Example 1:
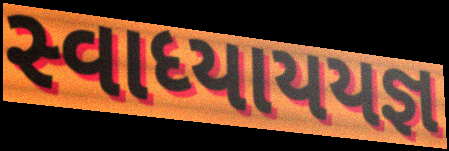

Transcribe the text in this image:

સ્વાધ્યાયયજ્ઞ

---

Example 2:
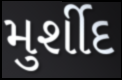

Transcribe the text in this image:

મુર્શીદ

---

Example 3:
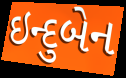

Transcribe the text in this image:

ઇન્દુબેન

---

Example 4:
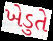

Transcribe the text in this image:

ખેડુતે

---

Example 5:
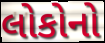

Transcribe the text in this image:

લોકોનો